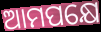
ଆମପକ୍ଷେ